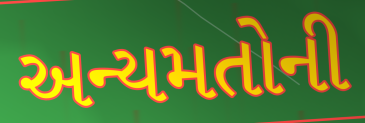
અન્યમતોની